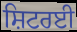
ਸ਼ਿਟਰਈ